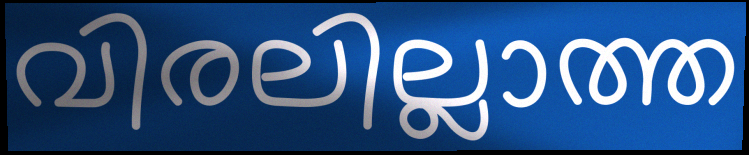
വിരലില്ലാത്ത